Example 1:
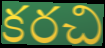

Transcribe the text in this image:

కరచి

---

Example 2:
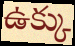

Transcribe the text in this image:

ఉక్కు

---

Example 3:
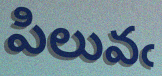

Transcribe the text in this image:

పిలువఁ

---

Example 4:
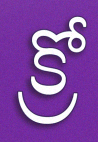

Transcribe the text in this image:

క్రో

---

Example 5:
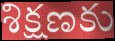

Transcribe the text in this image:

శిక్షణకు